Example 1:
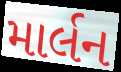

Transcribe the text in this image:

માર્લન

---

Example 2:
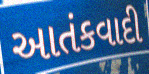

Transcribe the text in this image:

આતંકવાદી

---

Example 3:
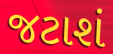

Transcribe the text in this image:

જટાશં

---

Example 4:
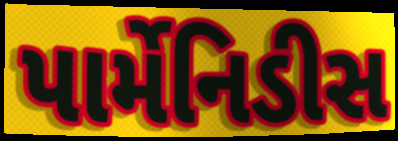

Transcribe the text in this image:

પાર્મેનિડીસ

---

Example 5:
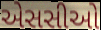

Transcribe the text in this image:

એસસીઓ